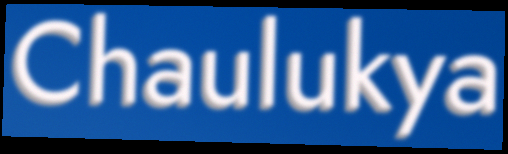
Chaulukya